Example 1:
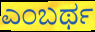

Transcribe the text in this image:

ಎಂಬರ್ಥ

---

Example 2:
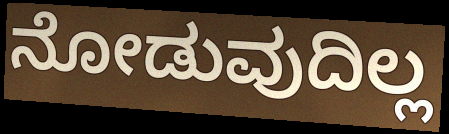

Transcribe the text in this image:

ನೋಡುವುದಿಲ್ಲ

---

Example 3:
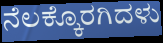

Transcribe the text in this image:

ನೆಲಕ್ಕೊರಗಿದಳು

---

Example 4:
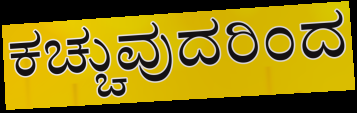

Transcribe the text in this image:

ಕಚ್ಚುವುದರಿಂದ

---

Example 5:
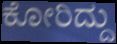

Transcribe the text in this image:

ಕೋರಿದ್ದು